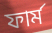
ফার্ম